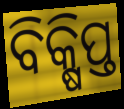
ବିକ୍ଷିପ୍ତ